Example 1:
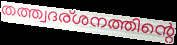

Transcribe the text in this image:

തത്ത്വദര്ശനത്തിന്റെ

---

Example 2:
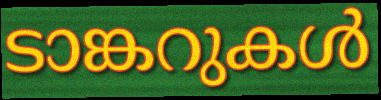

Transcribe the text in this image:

ടാങ്കറുകൾ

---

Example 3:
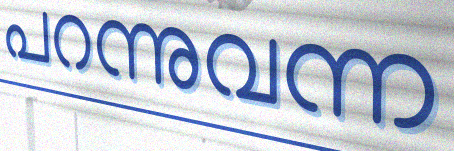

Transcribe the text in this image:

പറന്നുവന്ന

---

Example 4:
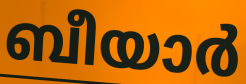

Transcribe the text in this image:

ബീയാർ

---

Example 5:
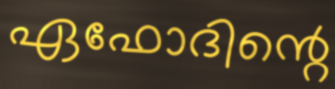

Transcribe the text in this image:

ഏഫോദിന്റെ